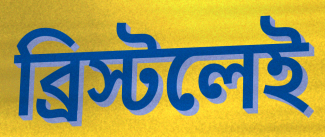
ব্রিস্টলেই